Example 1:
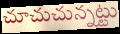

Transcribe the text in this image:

చూచుచున్నట్టు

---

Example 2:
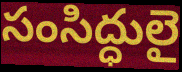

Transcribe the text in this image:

సంసిద్ధులై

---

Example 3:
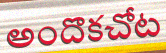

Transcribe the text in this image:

అందొకచోట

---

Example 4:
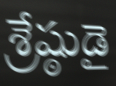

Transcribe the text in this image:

శ్రేష్ఠుడై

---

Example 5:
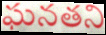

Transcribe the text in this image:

ఘనతని